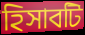
হিসাবটি